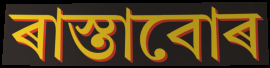
ৰাস্তাবোৰ